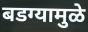
बडग्यामुळे